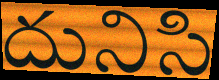
దునిసి